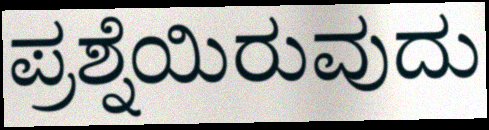
ಪ್ರಶ್ನೆಯಿರುವುದು